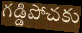
గడ్డిపోచకు